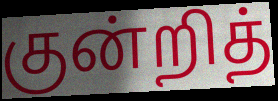
குன்றித்